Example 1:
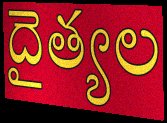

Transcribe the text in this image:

దైత్యల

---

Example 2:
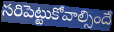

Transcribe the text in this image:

సరిపెట్టుకోవాల్సిందే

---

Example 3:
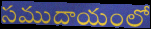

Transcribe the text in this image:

సముదాయంలో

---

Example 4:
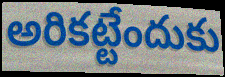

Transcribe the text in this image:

అరికట్టేందుకు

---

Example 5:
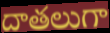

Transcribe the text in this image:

దాతలుగా